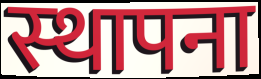
स्‍थापना